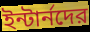
ইন্টার্নদের